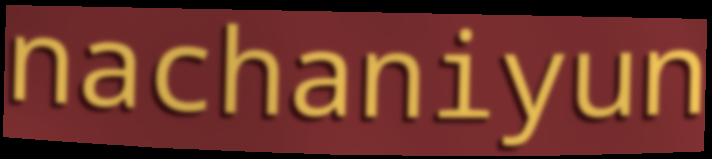
nachaniyun